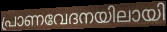
പ്രാണവേദനയിലായി